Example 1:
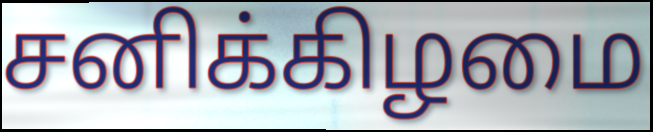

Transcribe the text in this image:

சனிக்கிழமை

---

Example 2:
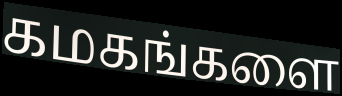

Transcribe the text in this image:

கமகங்களை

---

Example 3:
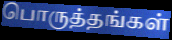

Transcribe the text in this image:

பொருத்தங்கள்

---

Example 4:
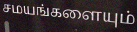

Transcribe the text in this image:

சமயங்களையும்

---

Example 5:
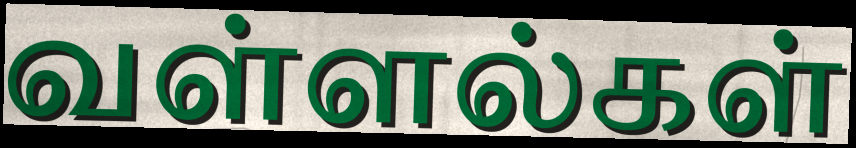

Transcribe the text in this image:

வள்ளல்கள்